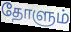
தோளும்